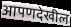
आपणदेखील